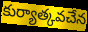
కుర్యాత్కవచేన